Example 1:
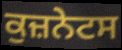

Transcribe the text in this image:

ਕੁਜ਼ਨੇਟਸ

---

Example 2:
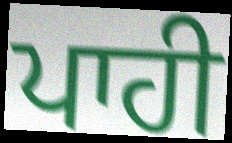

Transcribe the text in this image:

ਪਾਹੀ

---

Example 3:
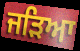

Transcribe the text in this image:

ਜੜਿਆ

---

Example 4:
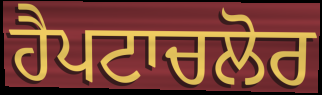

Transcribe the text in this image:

ਹੈਪਟਾਚਲੋਰ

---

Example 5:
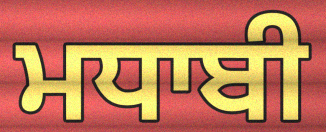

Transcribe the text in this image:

ਮਧਾਬੀ